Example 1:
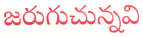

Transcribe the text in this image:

జరుగుచున్నవి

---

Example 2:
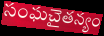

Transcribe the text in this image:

సంఘచైతన్యం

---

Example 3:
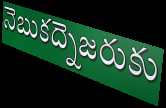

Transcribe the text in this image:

నెబుకద్నెజరుకు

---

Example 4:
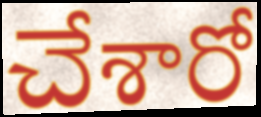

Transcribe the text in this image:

చేశారో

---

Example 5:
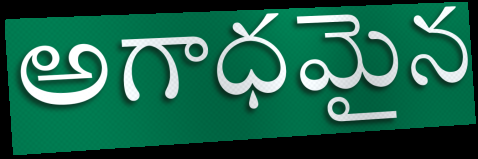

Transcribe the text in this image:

అగాధమైన